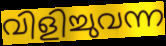
വിളിച്ചുവന്ന